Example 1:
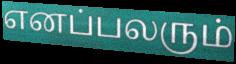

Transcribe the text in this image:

எனப்பலரும்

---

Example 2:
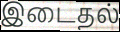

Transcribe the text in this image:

இடைதல்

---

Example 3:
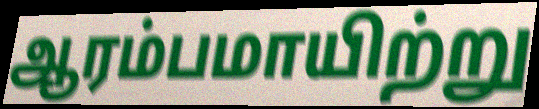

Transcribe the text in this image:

ஆரம்பமாயிற்று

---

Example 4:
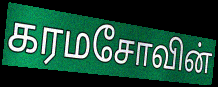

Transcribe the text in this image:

கரமசோவின்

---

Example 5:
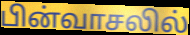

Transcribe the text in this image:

பின்வாசலில்